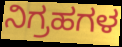
ನಿಗ್ರಹಗಳ